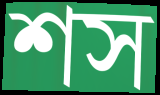
শস